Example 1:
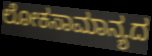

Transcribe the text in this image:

ಲೋಕಸಾಮಾನ್ಯದ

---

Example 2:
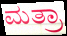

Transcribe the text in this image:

ಮತ್ರಾ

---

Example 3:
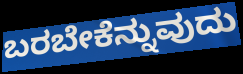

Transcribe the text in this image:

ಬರಬೇಕೆನ್ನುವುದು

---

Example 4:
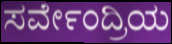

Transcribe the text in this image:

ಸರ್ವೇಂದ್ರಿಯ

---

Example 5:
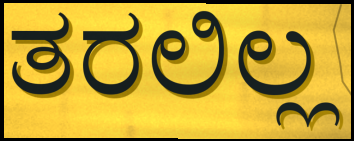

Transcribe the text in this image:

ತರಲಿಲ್ಲ